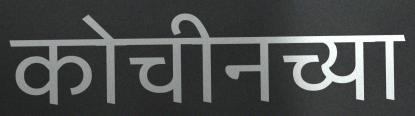
कोचीनच्या